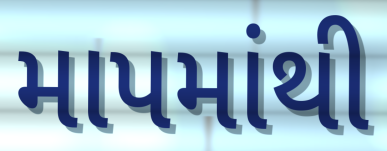
માપમાંથી